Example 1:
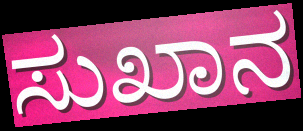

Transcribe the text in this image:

ಸುಖಾನ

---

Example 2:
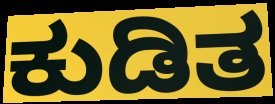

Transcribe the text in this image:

ಕುಡಿತ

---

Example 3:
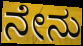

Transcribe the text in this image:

ನೇನು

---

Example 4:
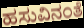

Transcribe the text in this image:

ಹಸುವಿನಂತೆ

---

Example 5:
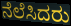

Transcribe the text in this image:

ನೆಲೆಸಿದರು